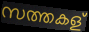
സത്തകള്